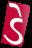
ડે